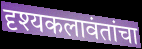
दृश्यकलावंतांचा